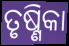
ତୃଷ୍ଣିକା